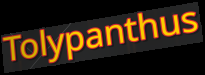
Tolypanthus